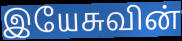
இயேசுவின்